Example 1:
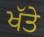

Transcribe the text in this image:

ਖੱਤੇ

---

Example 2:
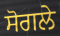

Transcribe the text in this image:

ਸੋਗਲੇ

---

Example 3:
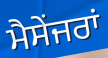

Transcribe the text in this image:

ਮੈਸੇਂਜਰਾਂ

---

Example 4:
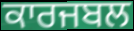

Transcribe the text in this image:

ਕਾਰਜਬਲ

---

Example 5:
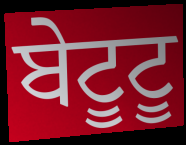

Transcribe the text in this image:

ਬੇਟੂਟੂ